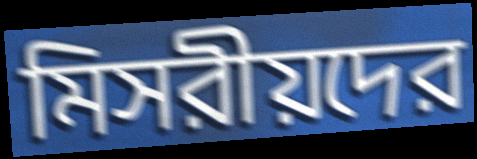
মিসরীয়দের